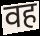
वह